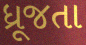
ધ્રૂજતા